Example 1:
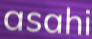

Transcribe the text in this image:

asahi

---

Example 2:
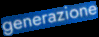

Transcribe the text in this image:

generazione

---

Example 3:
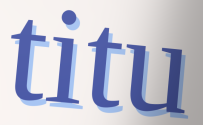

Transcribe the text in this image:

titu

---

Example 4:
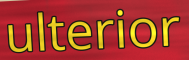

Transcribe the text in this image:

ulterior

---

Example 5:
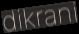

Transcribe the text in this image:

dikrani